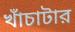
খাঁচাটার